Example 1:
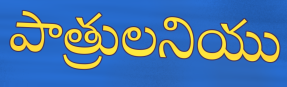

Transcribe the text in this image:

పాత్రులనియు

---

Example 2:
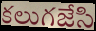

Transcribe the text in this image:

కలుగజేసి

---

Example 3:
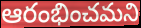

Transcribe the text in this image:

ఆరంభించమని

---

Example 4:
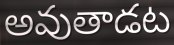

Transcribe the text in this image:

అవుతాడట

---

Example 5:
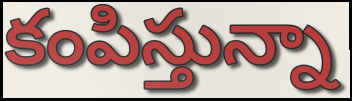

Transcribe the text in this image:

కంపిస్తున్నా